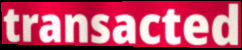
transacted